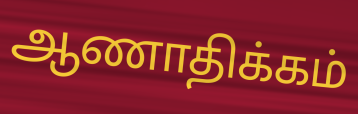
ஆணாதிக்கம்